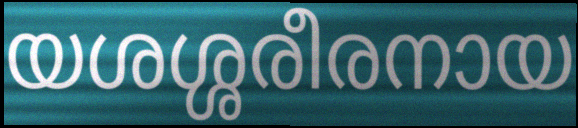
യശശ്ശരീരനായ